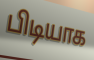
பிடியாக